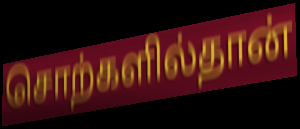
சொற்களில்தான்